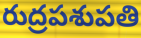
రుద్రపశుపతి